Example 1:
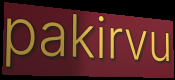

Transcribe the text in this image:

pakirvu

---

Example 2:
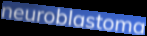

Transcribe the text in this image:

neuroblastoma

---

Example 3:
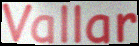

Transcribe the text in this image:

Vallar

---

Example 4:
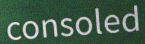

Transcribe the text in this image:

consoled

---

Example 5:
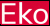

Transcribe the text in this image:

Eko